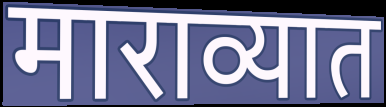
माराव्यात